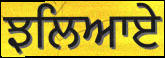
ਝਲਿਆਏ